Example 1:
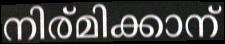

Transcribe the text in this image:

നിര്മിക്കാന്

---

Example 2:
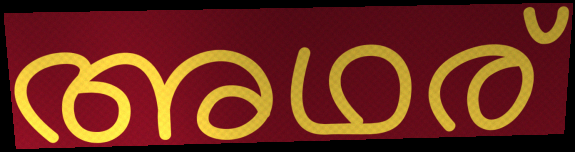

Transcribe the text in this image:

അഥര്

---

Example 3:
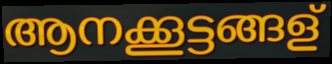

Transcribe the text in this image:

ആനക്കൂട്ടങ്ങള്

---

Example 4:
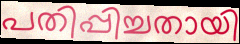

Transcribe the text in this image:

പതിപ്പിച്ചതായി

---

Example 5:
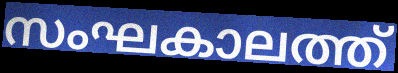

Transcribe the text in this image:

സംഘകാലത്ത്